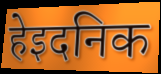
हेइदनिक